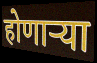
होणाऱ्या